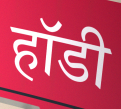
हॉडी